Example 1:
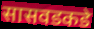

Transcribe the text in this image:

सासवडकडे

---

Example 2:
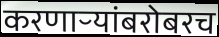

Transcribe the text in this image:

करणाऱ्यांबरोबरच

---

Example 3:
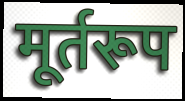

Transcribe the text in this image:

मूर्तरूप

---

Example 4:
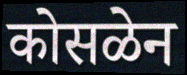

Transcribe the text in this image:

कोसळेन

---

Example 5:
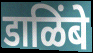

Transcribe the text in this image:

डाळिंबे